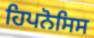
ਹਿਪਨੋਸਿਸ